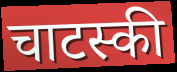
चाटस्की